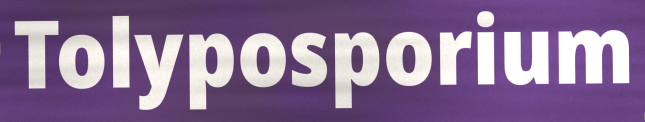
Tolyposporium